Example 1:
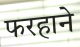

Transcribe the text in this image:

फरहाने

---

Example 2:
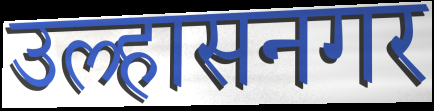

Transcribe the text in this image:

उल्हासनगर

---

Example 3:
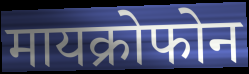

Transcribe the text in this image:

मायक्रोफोन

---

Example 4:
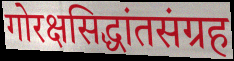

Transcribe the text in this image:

गोरक्षसिद्धांतसंग्रह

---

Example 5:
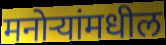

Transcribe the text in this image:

मनोऱ्यांमधील